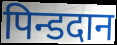
पिन्डदान